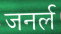
जनर्ल